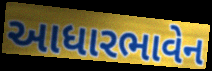
આધારભાવેન